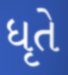
ધૃતે